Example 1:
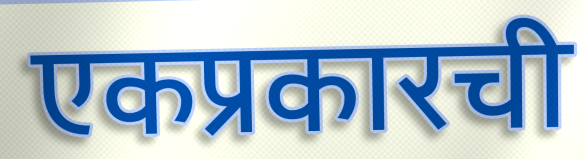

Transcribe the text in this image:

एकप्रकारची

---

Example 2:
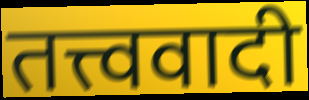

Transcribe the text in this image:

तत्त्ववादी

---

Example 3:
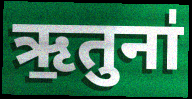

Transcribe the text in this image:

ऋ॒तुना॑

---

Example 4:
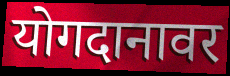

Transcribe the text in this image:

योगदानावर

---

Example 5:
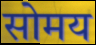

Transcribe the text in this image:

सोमय